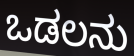
ಒಡಲನು